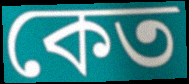
কেত